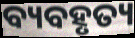
ବ୍ୟବହୃତ୍ୟ